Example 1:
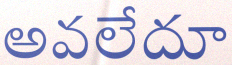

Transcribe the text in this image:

అవలేదూ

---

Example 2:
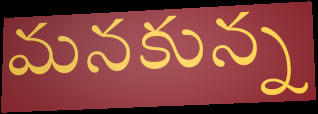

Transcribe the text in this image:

మనకున్న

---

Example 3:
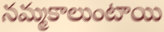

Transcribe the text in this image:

నమ్మకాలుంటాయి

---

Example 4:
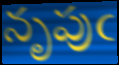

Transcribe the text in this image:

నృపుఁ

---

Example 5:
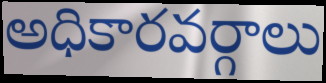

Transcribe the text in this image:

అధికారవర్గాలు